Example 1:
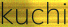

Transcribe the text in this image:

kuchi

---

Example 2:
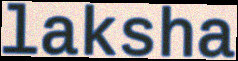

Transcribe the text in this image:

laksha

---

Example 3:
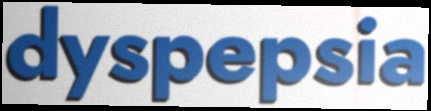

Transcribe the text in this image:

dyspepsia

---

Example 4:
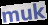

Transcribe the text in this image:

muk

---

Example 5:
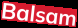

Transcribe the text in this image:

Balsam